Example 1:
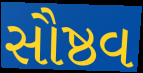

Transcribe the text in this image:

સૌષ્ઠવ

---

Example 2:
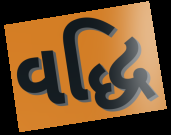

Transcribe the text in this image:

વદ્ધિ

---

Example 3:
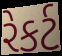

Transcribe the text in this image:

રેકર્ટ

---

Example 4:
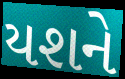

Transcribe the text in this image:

યશને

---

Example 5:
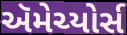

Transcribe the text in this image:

ઍમેચ્યોર્સ